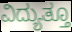
ವಿದ್ಯುತ್ತೂ